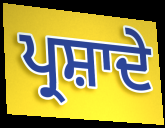
ਪ੍ਰਸ਼ਾਦੇ